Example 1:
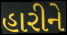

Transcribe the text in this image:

હારીને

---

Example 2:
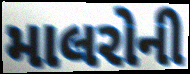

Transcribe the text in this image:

માલરોની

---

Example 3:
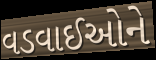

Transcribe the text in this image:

વડવાઈઓને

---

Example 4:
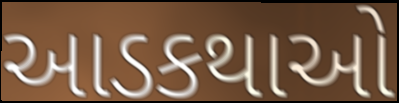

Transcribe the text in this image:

આડકથાઓ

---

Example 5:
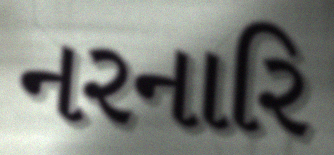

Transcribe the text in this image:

નરનારિ